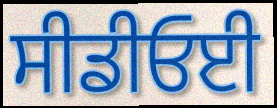
ਸੀਡੀਓਈ